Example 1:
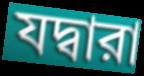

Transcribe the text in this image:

যদ্বারা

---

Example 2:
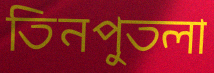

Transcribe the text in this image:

তিনপুতলা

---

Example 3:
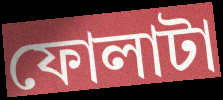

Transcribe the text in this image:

ফোলাটা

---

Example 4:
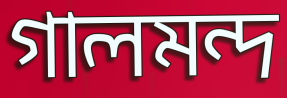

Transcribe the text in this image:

গালমন্দ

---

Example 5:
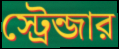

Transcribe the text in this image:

স্ট্রেন্জার